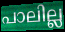
പാലില്ല